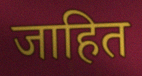
जाहित